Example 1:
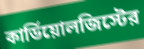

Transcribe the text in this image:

কার্ডিয়োলজিস্টের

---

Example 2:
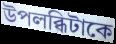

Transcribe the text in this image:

উপলব্ধিটাকে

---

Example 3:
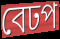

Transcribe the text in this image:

বেঢপ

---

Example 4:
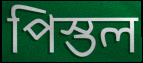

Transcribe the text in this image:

পিস্তল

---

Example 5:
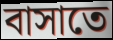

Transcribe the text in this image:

বাসাতে